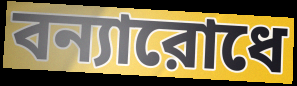
বন্যারোধে